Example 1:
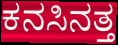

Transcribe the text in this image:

ಕನಸಿನತ್ತ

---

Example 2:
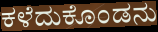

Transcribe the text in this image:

ಕಳೆದುಕೊಂಡನು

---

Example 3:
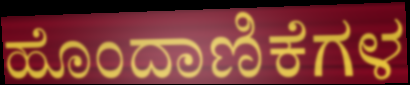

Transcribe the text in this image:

ಹೊಂದಾಣಿಕೆಗಳ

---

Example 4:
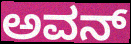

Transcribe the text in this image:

ಅವನ್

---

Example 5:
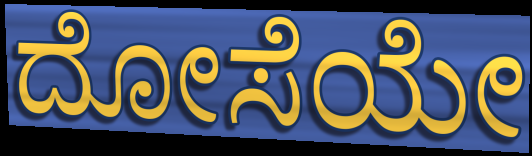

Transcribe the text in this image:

ದೋಸೆಯೇ